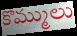
కొమ్ములు